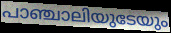
പാഞ്ചാലിയുടേയും